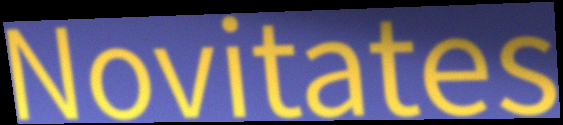
Novitates